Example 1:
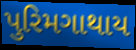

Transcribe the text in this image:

પુરિમગાથાય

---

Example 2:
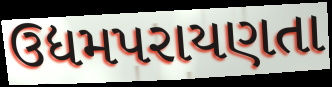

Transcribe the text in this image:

ઉદ્યમપરાયણતા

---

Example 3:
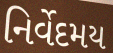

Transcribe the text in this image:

નિર્વેદમય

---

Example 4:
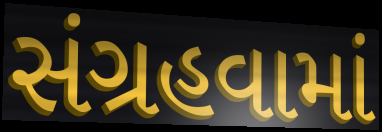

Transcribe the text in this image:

સંગ્રહવામાં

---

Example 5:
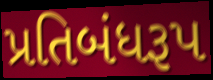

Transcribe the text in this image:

પ્રતિબંધરૂપ